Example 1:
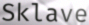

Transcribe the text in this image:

Sklave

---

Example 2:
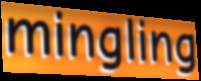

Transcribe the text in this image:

mingling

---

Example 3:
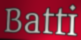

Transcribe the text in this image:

Batti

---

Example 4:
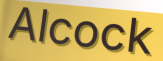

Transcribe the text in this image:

Alcock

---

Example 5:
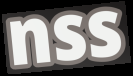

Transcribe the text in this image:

nss